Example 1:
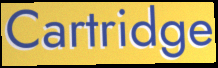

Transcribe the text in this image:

Cartridge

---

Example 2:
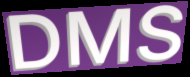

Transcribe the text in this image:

DMS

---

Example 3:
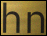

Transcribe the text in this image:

hn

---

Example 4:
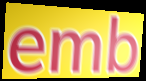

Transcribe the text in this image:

emb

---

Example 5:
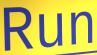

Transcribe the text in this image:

Run